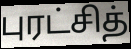
புரட்சித்